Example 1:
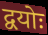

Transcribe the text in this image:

द्वयोः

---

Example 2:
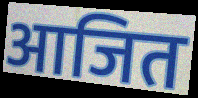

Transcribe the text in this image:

आजित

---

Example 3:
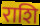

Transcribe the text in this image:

राशि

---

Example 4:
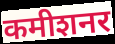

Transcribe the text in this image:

कमीशनर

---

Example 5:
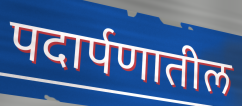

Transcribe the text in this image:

पदार्पणातील